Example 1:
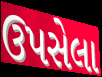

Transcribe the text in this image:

ઉપસેલા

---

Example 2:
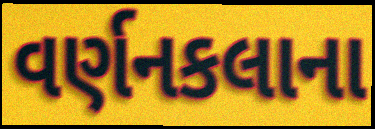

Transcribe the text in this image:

વર્ણનકલાના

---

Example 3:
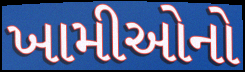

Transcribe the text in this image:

ખામીઓનો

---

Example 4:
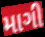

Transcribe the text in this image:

માગી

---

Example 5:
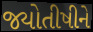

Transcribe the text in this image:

જ્યોતીષીને